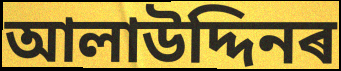
আলাউদ্দিনৰ